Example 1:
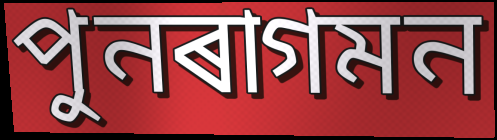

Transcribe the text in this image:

পুনৰাগমন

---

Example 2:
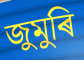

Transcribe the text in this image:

জুমুৰি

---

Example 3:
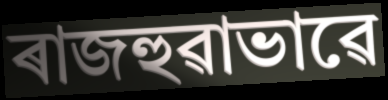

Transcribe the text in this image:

ৰাজহুৱাভাৱে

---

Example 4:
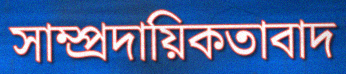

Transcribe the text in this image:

সাম্প্ৰদায়িকতাবাদ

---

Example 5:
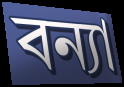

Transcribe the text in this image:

বন্যা